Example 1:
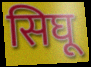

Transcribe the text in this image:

सिघू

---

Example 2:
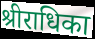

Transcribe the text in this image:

श्रीराधिका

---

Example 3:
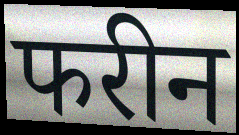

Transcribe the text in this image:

फरीन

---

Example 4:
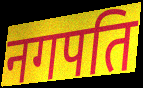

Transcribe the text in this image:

नगपति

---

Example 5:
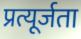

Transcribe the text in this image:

प्रत्यूर्जता